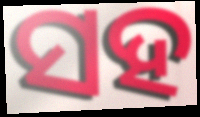
ସହ